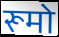
रूमो